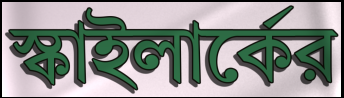
স্কাইলার্কের